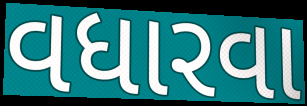
વધારવા